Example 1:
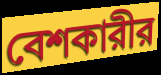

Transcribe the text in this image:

বেশকারীর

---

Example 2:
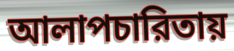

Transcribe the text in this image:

আলাপচারিতায়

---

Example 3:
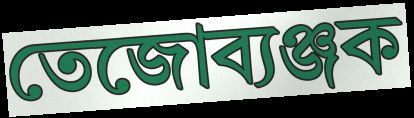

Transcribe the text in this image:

তেজোব্যঞ্জক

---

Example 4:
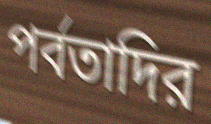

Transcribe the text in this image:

পর্বতাদির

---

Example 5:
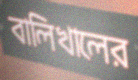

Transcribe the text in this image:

বালিখালের